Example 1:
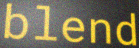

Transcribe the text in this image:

blend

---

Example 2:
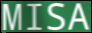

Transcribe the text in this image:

MISA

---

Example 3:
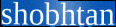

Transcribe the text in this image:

shobhtan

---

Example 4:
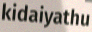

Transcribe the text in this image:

kidaiyathu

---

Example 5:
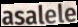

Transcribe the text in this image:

asalele